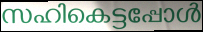
സഹികെട്ടപ്പോൾ